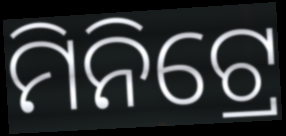
ମିନିଟ୍ରେ